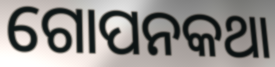
ଗୋପନକଥା